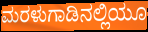
ಮರಳುಗಾಡಿನಲ್ಲಿಯೂ